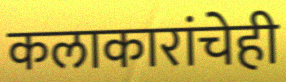
कलाकारांचेही